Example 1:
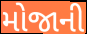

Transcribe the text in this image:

મોજાની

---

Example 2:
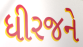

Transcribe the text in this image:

ધીરજને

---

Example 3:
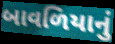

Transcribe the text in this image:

બાવળિયાનું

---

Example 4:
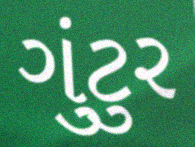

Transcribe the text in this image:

ગુંટુર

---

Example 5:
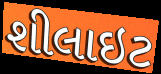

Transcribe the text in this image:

શીલાઇટ